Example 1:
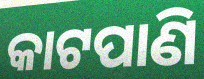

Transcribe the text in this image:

କାଟପାଣି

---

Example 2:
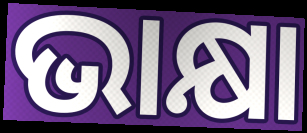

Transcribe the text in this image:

ଭାକ୍ଷା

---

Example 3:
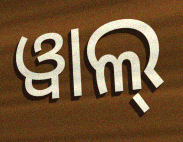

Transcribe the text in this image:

ୱାଲ୍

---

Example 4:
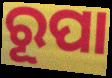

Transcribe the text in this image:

ରୂପା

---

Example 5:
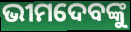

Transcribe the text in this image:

ଭୀମଦେବଙ୍କୁ